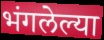
भंगलेल्या